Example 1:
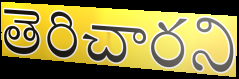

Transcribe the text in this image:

తెరిచారని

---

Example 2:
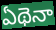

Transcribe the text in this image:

ఏథెనా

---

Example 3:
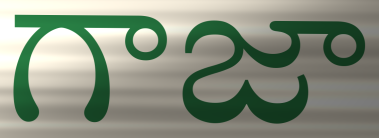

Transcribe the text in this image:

గాజా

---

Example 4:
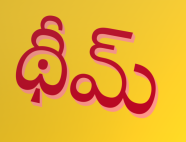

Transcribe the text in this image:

థీమ్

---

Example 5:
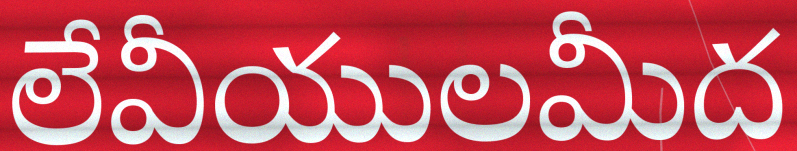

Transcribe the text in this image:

లేవీయులమీద